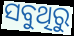
ସବୁଥିରୁ